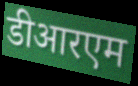
डीआरएम